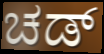
ಚಡ್